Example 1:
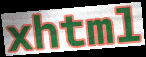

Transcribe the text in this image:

xhtml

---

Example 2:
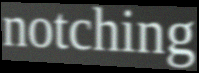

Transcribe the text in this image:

notching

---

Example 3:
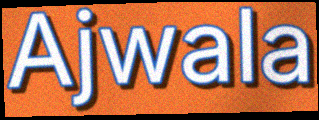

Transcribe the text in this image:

Ajwala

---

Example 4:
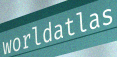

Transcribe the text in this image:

worldatlas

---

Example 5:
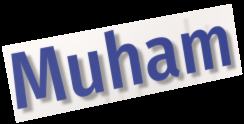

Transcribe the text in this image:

Muham